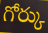
గోర్కు